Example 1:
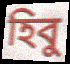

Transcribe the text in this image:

হিবু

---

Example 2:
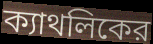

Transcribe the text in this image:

ক্যাথলিকের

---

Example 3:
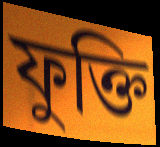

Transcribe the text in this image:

ফুক্তি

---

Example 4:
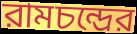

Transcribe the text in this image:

রামচন্দ্রের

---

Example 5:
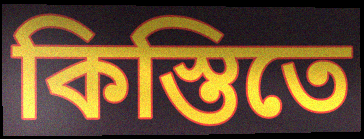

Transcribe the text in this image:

কিস্তিতে